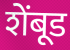
शेंबूड